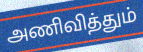
அணிவித்தும்